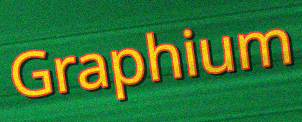
Graphium